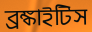
ব্রঙ্কাইটিস